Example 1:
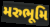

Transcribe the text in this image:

મરુભૂમિ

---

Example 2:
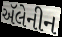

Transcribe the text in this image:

ઍલેનીન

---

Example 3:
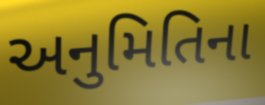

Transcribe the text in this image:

અનુમિતિના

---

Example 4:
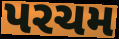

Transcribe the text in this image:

પરચમ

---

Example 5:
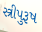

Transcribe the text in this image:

સ્ત્રીપુરૂષ